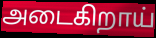
அடைகிறாய்